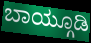
ಬಾಯ್ಗೂಡಿ